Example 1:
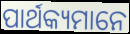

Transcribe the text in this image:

ପାର୍ଥକ୍ୟମାନେ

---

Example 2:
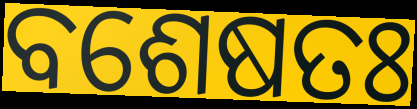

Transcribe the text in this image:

ବଶେଷତଃ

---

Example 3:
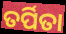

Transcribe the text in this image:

ତର୍ପିତା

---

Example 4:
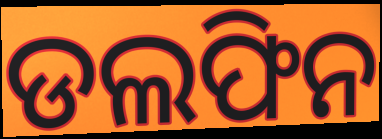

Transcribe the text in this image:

ଡଲଫିନ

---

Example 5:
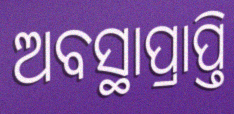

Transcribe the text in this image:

ଅବସ୍ଥାପ୍ରାପ୍ତି